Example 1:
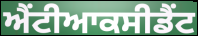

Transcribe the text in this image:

ਐਂਟੀਆਕਸੀਡੈਂਟ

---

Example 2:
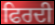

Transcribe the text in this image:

ਫਿਰਦੀ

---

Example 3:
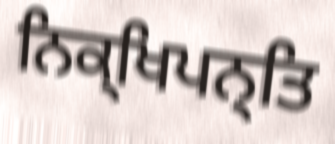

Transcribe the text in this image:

ਨਿਕ੍ਖਿਪਨ੍ਤਿ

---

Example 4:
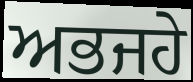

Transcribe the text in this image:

ਅਭਜਹੇ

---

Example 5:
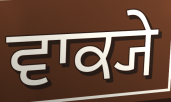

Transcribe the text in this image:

ਵਾਕ੍ਯੇ